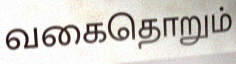
வகைதொறும்